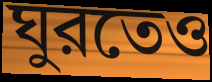
ঘুরতেও